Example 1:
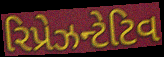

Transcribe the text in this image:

રિપ્રેઝન્ટેટિવ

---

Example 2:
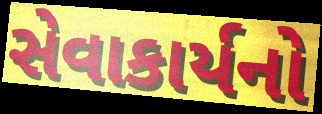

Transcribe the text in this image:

સેવાકાર્યનો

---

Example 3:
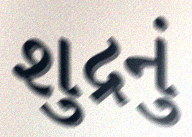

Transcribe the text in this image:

શુદ્રનું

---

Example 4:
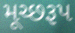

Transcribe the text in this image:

મૂચ્છરૂપ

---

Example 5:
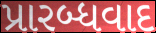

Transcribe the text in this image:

પ્રારબ્ધવાદ